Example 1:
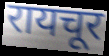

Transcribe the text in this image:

रायचूर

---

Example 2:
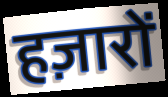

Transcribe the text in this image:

हज़ारों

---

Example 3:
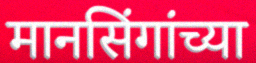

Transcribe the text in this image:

मानसिंगांच्या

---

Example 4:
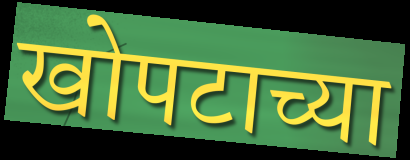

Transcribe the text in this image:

खोपटाच्या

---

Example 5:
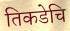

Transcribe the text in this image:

तिकडेचि